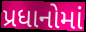
પ્રધાનોમાં